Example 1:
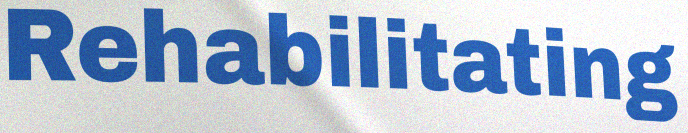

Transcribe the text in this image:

Rehabilitating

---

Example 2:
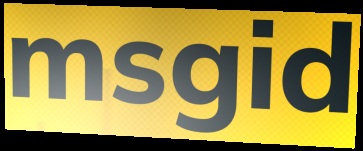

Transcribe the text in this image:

msgid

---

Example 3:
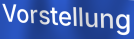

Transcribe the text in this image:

Vorstellung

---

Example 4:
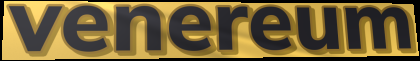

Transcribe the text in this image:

venereum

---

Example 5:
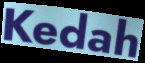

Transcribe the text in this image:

Kedah